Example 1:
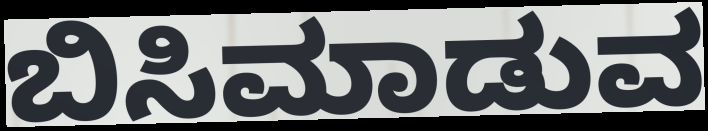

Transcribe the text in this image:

ಬಿಸಿಮಾಡುವ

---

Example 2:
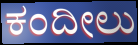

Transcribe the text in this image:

ಕಂದೀಲು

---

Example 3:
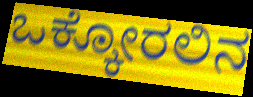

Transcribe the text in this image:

ಒಕ್ಕೋರಲಿನ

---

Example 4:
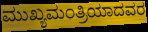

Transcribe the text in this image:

ಮುಖ್ಯಮಂತ್ರಿಯಾದವರ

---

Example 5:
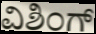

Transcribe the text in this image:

ವಿಶಿಂಗ್